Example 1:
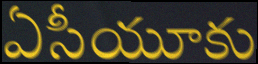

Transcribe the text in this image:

ఏసీయూకు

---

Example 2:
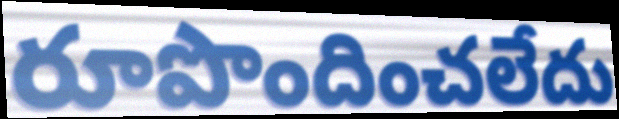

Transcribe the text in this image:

రూపొందించలేదు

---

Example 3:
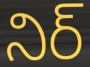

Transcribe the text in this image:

నిర్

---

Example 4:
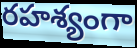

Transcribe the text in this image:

రహశ్యంగా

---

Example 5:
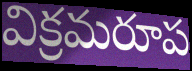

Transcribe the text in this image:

విక్రమరూప